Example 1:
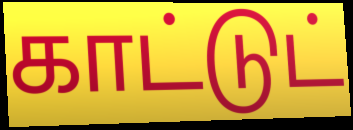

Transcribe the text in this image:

காட்டுட்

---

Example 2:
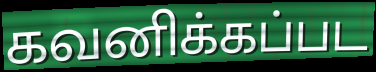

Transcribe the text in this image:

கவனிக்கப்பட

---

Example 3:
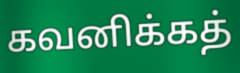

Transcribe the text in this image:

கவனிக்கத்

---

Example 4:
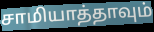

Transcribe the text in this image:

சாமியாத்தாவும்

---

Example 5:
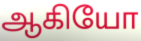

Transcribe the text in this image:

ஆகியோ